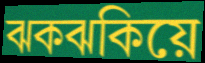
ঝকঝকিয়ে